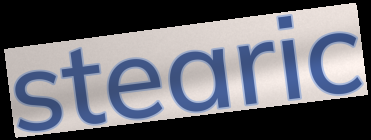
stearic